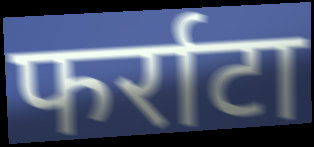
फर्राटा